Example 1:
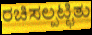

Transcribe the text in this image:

ರಚಿಸಲ್ಪಟ್ಟಿತು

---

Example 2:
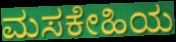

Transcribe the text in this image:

ಮಸಕೇಹಿಯ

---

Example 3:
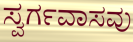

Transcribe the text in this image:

ಸ್ವರ್ಗವಾಸವು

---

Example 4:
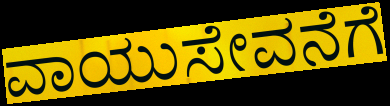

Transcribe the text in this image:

ವಾಯುಸೇವನೆಗೆ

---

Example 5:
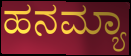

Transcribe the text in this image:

ಹನಮ್ಯಾ